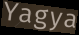
Yagya